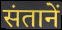
संतानें